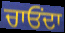
ਚਾਓਂਦਾ